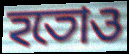
হতোও